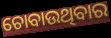
ଚୋବାଉଥିବାର